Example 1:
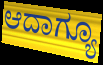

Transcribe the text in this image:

ಆದಾಗ್ಯೂ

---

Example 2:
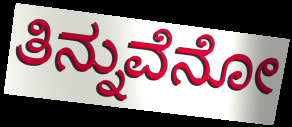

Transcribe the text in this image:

ತಿನ್ನುವೆನೋ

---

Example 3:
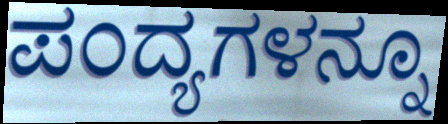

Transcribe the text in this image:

ಪಂದ್ಯಗಳನ್ನೂ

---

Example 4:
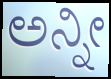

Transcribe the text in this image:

ಅನ್ನೀ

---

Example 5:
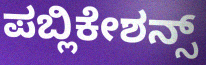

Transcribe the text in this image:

ಪಬ್ಲಿಕೇಶನ್ಸ್